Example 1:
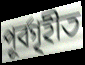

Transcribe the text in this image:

পূর্বগৃহীত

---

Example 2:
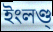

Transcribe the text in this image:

ইংলণ্ড্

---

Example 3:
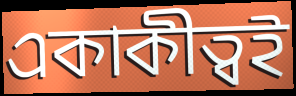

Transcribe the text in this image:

একাকীত্বই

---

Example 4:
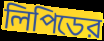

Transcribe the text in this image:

লিপিডের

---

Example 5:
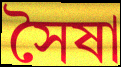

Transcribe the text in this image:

সৈষা